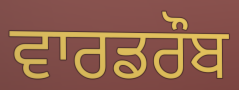
ਵਾਰਡਰੌਬ